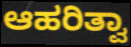
ಆಹರಿತ್ವಾ